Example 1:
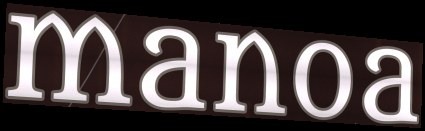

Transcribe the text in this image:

manoa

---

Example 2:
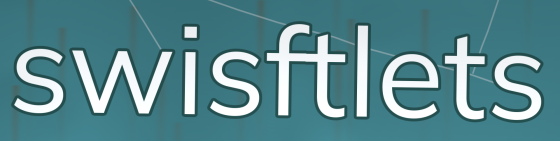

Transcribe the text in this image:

swisftlets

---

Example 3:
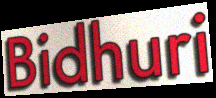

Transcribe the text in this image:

Bidhuri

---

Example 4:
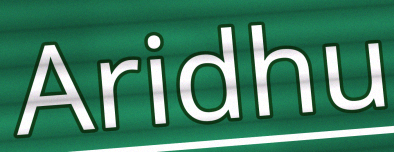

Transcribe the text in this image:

Aridhu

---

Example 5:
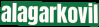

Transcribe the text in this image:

alagarkovil